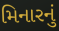
મિનારનું